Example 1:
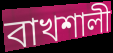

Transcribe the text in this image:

বাখশালী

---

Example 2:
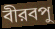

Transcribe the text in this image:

বীরবপু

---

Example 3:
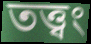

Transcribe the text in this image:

তত্ত্বং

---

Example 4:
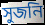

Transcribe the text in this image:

সুজনি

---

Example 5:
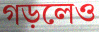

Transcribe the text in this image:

গড়লেও